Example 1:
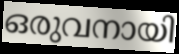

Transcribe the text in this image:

ഒരുവനായി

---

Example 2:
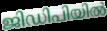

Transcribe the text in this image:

ജിഡിപിയിൽ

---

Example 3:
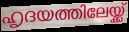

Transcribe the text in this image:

ഹൃദയത്തിലേയ്ക്ക്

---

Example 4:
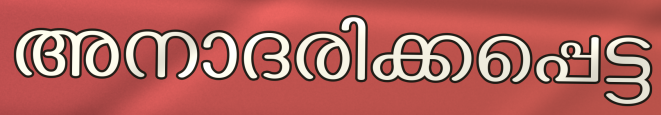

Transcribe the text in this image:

അനാദരിക്കപ്പെട്ട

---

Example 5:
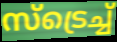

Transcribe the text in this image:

സ്ട്രെച്ച്